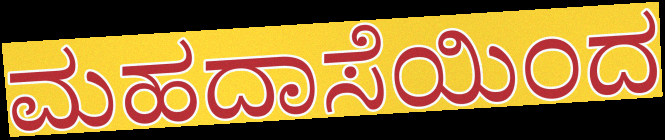
ಮಹದಾಸೆಯಿಂದ